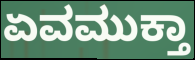
ಏವಮುಕ್ತಾ